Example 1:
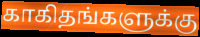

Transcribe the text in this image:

காகிதங்களுக்கு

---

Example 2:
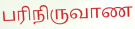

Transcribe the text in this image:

பரிநிருவாண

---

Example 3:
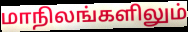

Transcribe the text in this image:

மாநிலங்களிலும்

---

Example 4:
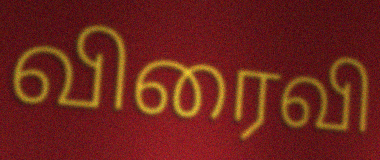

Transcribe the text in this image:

விரைவி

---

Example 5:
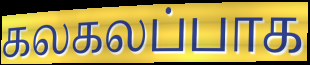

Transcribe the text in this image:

கலகலப்பாக